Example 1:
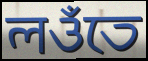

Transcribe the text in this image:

লওঁতে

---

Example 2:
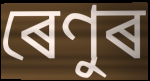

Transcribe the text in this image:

ৰেণুৰ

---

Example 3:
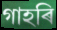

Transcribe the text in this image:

গাহৰি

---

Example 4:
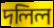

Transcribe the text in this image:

দলিল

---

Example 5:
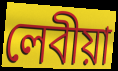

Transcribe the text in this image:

লেবীয়া